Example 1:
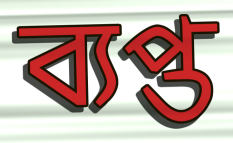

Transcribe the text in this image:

ব্যপ্ত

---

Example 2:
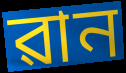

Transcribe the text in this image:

ৱান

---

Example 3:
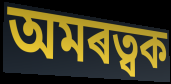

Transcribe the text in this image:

অমৰত্বক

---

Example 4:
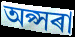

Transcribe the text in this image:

অপ্সৰা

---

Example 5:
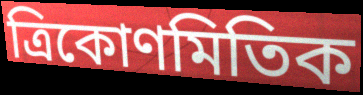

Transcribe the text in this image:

ত্ৰিকোণমিতিক